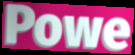
Powe